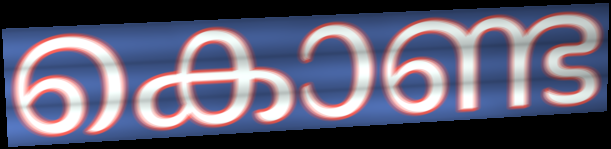
കൊണ്ട